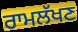
ਰਾਮਲੱਖਣ